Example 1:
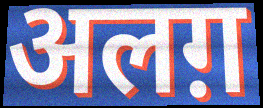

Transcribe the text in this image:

अलग़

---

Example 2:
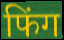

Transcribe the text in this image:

फिंग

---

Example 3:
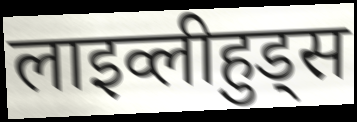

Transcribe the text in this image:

लाइव्लीहुड्स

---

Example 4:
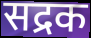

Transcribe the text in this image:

सद्रक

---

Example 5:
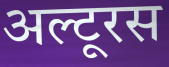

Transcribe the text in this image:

अल्टूरस